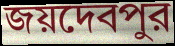
জয়দেবপুর